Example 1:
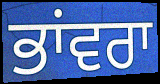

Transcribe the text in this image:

ਭਾਂਵਰਾ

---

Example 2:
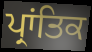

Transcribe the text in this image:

ਪ੍ਰਾਂਤਿਕ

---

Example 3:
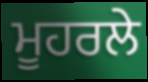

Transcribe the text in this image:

ਮੂਹਰਲੇ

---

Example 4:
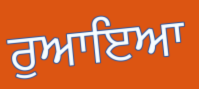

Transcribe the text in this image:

ਰੁਆਇਆ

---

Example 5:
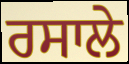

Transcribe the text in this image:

ਰਸਾਲੇ